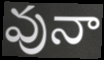
వునా